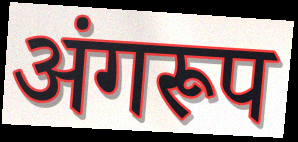
अंगरूप